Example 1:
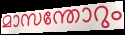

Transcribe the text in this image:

മാസന്തോറും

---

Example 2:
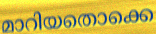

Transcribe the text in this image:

മാറിയതൊക്കെ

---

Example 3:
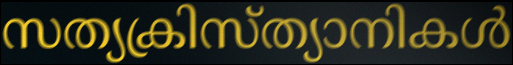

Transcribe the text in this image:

സത്യക്രിസ്ത്യാനികൾ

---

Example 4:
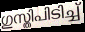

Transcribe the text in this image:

ഗുസ്തിപിടിച്ച്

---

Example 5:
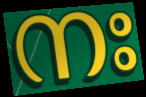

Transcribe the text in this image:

നഃ